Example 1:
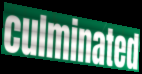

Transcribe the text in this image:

culminated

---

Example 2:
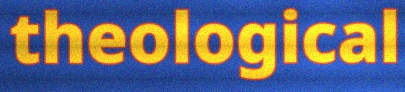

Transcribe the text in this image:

theological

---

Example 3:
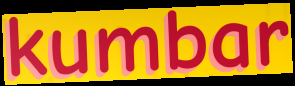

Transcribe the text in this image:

kumbar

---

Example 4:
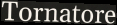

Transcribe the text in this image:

Tornatore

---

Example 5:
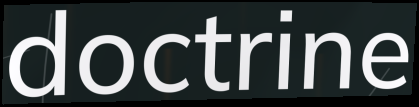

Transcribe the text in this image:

doctrine